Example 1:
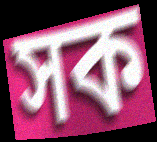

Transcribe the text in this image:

সক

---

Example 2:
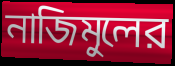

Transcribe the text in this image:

নাজিমুলের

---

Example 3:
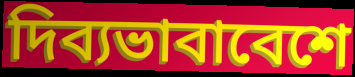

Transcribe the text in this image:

দিব্যভাবাবেশে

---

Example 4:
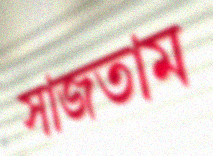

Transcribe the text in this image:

সাজতাম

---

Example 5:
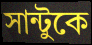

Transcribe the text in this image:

সান্টুকে